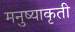
मनुष्याकृती